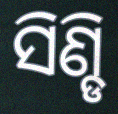
ସିଣ୍ଡି